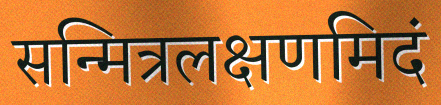
सन्मित्रलक्षणमिदं